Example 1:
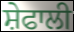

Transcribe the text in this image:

ਸ਼ੇਫਾਲੀ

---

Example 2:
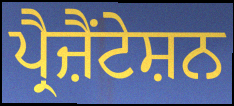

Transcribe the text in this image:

ਪ੍ਰੈਜ਼ੈਂਟੇਸ਼ਨ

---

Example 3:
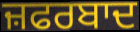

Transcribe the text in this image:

ਜ਼ਫਰਬਾਦ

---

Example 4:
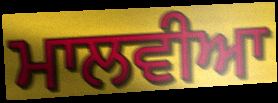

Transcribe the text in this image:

ਮਾਲਵੀਆ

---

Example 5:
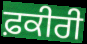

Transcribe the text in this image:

ਫ਼ਕੀਰੀ